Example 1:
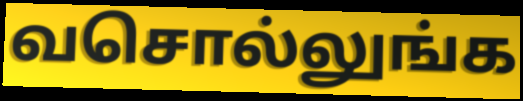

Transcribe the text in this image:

வசொல்லுங்க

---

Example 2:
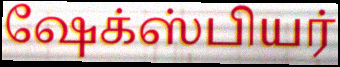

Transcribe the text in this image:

ஷேக்ஸ்பியர்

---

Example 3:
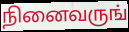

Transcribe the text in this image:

நினைவருங்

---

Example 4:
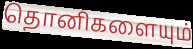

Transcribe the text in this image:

தொனிகளையும்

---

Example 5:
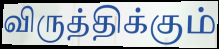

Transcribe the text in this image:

விருத்திக்கும்